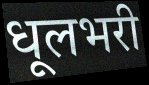
धूलभरी